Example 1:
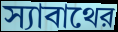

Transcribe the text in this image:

স্যাবাথের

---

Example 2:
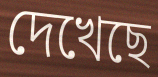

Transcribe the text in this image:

দেখেছে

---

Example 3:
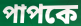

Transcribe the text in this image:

পাপকে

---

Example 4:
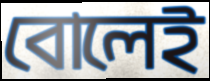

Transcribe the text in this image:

বোলেই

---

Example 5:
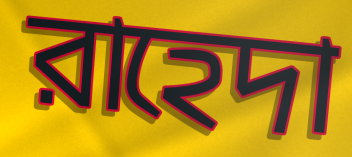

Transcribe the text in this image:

রাহেদা